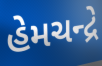
હેમચન્દ્રે